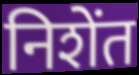
निशेंत